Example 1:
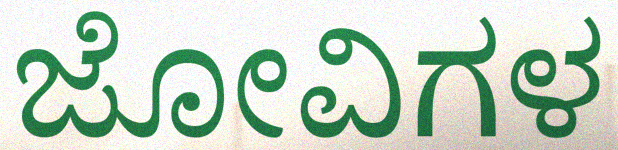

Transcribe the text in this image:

ಜೋವಿಗಳ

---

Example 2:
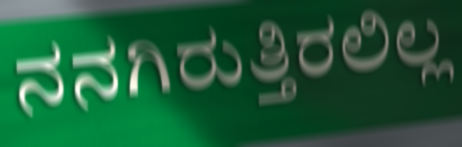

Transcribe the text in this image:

ನನಗಿರುತ್ತಿರಲಿಲ್ಲ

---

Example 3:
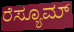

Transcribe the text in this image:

ರೆಸ್ಯೂಮ್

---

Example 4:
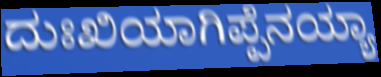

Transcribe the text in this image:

ದುಃಖಿಯಾಗಿಪ್ಪೆನಯ್ಯಾ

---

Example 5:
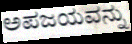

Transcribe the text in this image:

ಅಪಜಯವನ್ನು